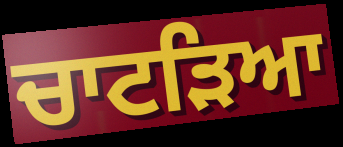
ਚਾਟੜਿਆ